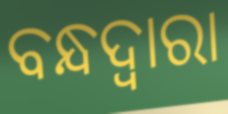
ବନ୍ଧଦ୍ବାରା